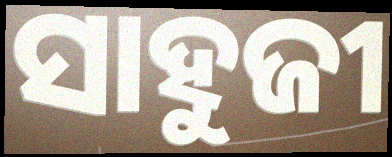
ସାହୁଜୀ